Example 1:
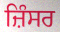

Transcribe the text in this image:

ਜ਼ਿੰਸਰ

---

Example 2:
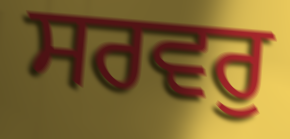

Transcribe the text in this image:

ਸਰਵਰੁ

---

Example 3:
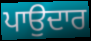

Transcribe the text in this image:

ਪਾਉਦਾਰ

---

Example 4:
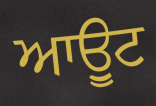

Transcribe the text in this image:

ਆਉੂਟ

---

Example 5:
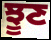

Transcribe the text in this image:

ਝੂਣ